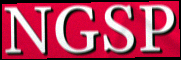
NGSP